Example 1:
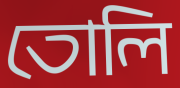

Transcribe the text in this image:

তোলি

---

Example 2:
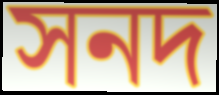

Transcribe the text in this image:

সনদ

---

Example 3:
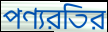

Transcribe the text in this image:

পণ্যরতির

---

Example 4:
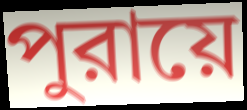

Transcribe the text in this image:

পুরায়ে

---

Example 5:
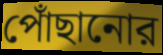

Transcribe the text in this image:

পোঁছানোর